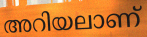
അറിയലാണ്